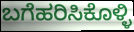
ಬಗೆಹರಿಸಿಕೊಳ್ಳಿ